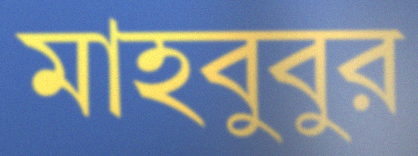
মাহবুবুর